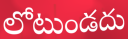
లోటుండదు